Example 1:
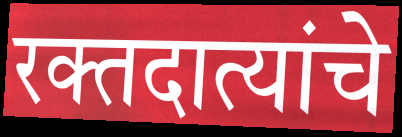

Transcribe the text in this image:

रक्तदात्यांचे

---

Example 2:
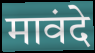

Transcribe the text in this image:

मावंदे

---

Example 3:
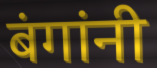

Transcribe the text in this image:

बंगांनी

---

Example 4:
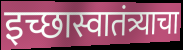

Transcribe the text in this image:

इच्छास्वातंत्र्याचा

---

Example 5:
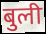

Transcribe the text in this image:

बुली